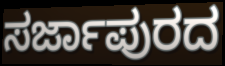
ಸರ್ಜಾಪುರದ